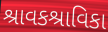
શ્રાવકશ્રાવિકા